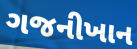
ગજનીખાન